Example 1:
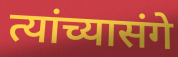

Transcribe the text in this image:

त्यांच्यासंगे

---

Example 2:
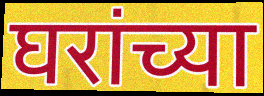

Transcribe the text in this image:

घरांच्या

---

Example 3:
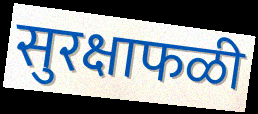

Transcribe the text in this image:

सुरक्षाफळी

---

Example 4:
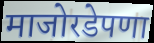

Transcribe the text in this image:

माजोरडेपणा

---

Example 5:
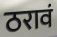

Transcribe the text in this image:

ठरावं